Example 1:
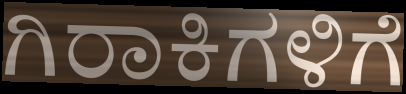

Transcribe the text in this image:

ಗಿರಾಕಿಗಳಿಗೆ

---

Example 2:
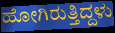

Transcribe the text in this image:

ಹೋಗಿರುತ್ತಿದ್ದಳು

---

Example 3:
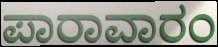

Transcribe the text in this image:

ಪಾರಾವಾರಂ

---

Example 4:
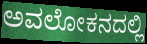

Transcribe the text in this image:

ಅವಲೋಕನದಲ್ಲಿ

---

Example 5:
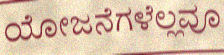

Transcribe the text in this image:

ಯೋಜನೆಗಳೆಲ್ಲವೂ